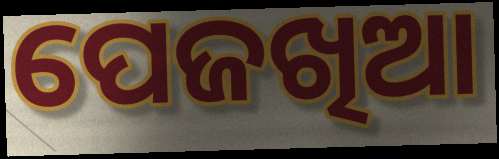
ପେଜଖିଆ